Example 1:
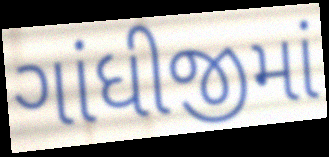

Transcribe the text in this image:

ગાંધીજીમાં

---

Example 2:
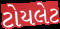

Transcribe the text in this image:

ટોયલેટ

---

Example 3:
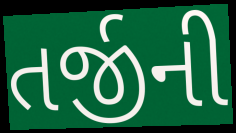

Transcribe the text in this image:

તર્જીની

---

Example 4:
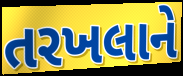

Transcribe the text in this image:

તરખલાને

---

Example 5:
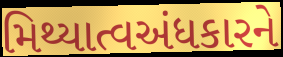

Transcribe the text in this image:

મિથ્યાત્વઅંધકારને